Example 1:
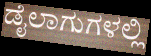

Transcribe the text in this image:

ಡೈಲಾಗುಗಳಲ್ಲಿ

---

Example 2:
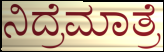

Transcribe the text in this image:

ನಿದ್ರೆಮಾತ್ರೆ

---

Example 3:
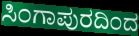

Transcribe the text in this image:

ಸಿಂಗಾಪುರದಿಂದ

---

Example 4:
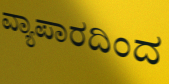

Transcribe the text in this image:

ವ್ಯಾಪಾರದಿಂದ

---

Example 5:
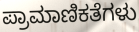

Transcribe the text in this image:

ಪ್ರಾಮಾಣಿಕತೆಗಳು